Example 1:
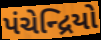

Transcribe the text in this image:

પંચેન્દ્રિયો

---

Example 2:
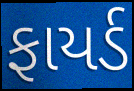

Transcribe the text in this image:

ફાયર્ડ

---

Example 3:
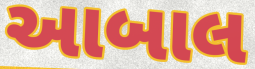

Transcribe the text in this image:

આબાલ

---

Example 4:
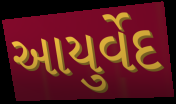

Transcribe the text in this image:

આયુર્વેદ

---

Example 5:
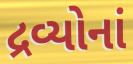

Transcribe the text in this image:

દ્રવ્યોનાં